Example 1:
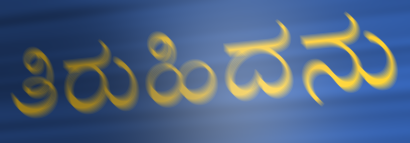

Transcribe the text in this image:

ತಿರುಹಿದನು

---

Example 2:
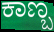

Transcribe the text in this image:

ಕಾಣ್ಬ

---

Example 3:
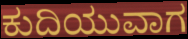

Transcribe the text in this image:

ಕುದಿಯುವಾಗ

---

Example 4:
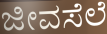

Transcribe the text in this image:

ಜೀವಸೆಲೆ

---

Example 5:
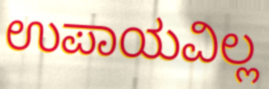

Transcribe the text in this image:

ಉಪಾಯವಿಲ್ಲ